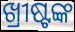
ଖ୍ରୀଷ୍ଟଙ୍କ